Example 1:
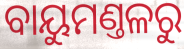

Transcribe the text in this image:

ବାୟୁମଣ୍ତଳରୁ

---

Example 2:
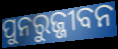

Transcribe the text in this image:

ପୁନରୁଜ୍ଜୀବନ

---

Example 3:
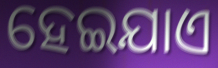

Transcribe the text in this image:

ହେଇଯାଏ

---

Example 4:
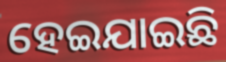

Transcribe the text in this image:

ହେଇଯାଇଛି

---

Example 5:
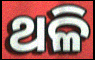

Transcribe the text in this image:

ଥଳି